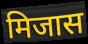
मिजास